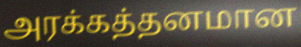
அரக்கத்தனமான